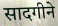
सादगीने